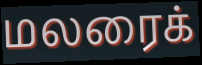
மலரைக்